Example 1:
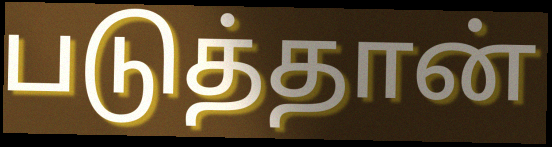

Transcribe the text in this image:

படுத்தான்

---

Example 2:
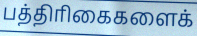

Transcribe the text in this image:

பத்திரிகைகளைக்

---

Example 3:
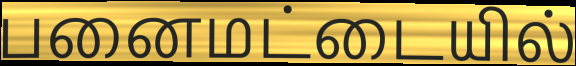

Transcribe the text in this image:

பனைமட்டையில்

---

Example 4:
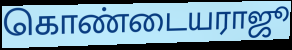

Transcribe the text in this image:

கொண்டையராஜூ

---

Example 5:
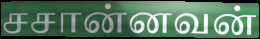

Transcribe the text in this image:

சசான்னவன்